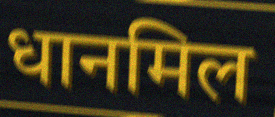
धानमिल